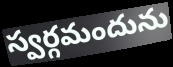
స్వర్గమందును